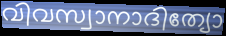
വിവസ്വാനാദിത്യോ